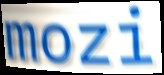
mozi